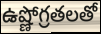
ఉష్ణోగ్రతలతో